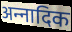
अन्नादिक